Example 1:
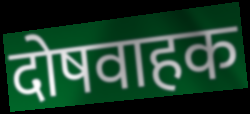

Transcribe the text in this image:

दोषवाहक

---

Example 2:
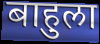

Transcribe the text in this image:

बाहुला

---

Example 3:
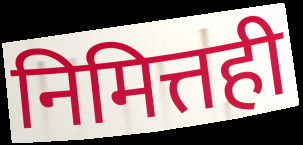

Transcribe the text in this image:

निमित्तही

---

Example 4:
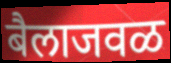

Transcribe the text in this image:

बैलाजवळ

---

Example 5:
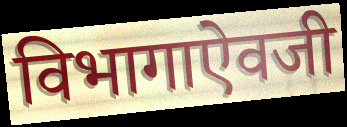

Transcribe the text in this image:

विभागाऐवजी